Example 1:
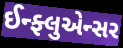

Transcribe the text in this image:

ઈન્ફ્લુએન્સર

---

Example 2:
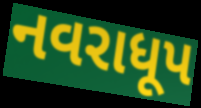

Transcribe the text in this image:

નવરાધૂપ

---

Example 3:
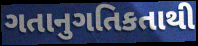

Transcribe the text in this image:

ગતાનુગતિકતાથી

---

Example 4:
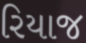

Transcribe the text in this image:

રિયાજ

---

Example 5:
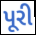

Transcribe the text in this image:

પૂરી